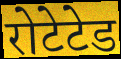
रोटेटेड